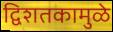
द्विशतकामुळे